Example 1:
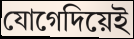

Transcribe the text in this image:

যোগেদিয়েই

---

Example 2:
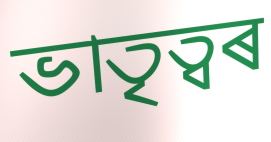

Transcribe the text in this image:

ভাতৃত্বৰ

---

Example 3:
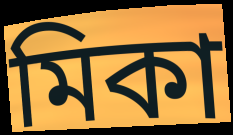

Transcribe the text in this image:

মিকা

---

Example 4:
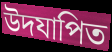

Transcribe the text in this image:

উদযাপিত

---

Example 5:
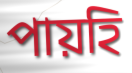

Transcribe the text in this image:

পায়হি